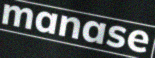
manase